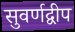
सुवर्णद्वीप